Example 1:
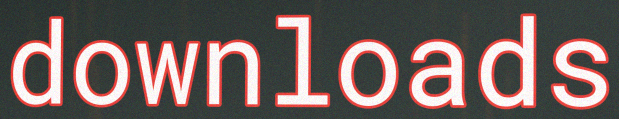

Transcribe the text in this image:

downloads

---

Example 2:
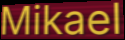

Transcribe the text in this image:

Mikael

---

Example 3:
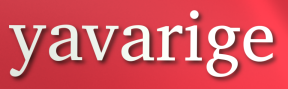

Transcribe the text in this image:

yavarige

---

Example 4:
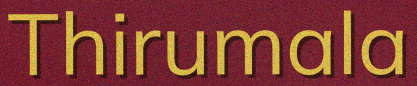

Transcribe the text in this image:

Thirumala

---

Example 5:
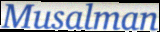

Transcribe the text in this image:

Musalman